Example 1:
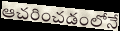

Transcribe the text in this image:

ఆచరించడంలోనే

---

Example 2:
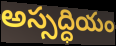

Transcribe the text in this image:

అస్సద్ధియం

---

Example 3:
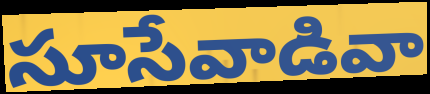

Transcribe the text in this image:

సూసేవాడివా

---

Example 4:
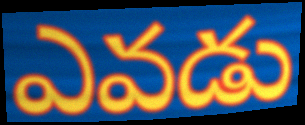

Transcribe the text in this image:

ఎవడు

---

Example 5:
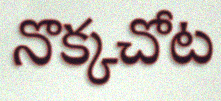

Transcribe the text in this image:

నొక్కచోట